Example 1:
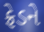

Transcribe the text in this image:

ફ્રેડને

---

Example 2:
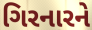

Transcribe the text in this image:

ગિરનારને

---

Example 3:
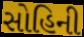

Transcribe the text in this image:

સોહિની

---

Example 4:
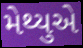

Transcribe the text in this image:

મેથ્યુએ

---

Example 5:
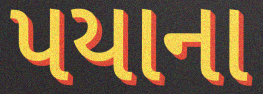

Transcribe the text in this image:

પયાના